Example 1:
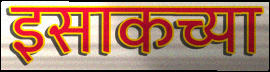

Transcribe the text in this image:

इसाकच्या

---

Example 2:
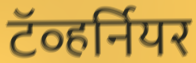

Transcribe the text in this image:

टॅव्हर्नियर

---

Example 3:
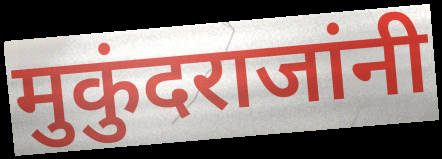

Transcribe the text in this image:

मुकुंदराजांनी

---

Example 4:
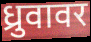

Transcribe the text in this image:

ध्रुवावर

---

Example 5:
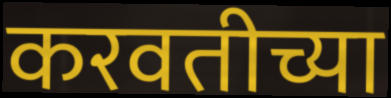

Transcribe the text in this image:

करवतीच्या